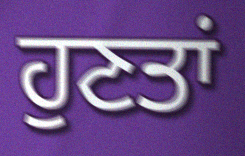
ਹੁਣਤਾਂ